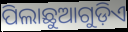
ପିଲାଛୁଆଗୁଡ଼ିଏ